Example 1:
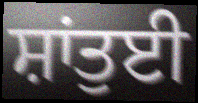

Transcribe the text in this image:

ਸ਼ਾਂਤੁਈ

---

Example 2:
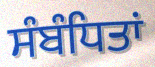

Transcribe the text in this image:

ਸੰਬੰਧਿਤਾਂ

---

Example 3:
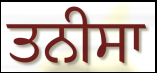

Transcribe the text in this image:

ਤਨੀਸਾ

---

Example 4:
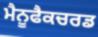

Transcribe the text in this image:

ਮੈਨੂਫੈਕਚਰਡ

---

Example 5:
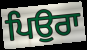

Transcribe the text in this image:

ਪਿਉਰਾ